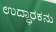
ಉದ್ಧಾರಕನು